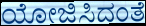
ಯೋಜಿಸಿದಂತೆ